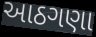
આઠગણા